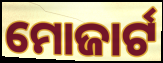
ମୋଜାର୍ଟ